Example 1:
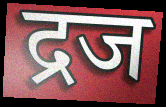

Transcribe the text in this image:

द्रज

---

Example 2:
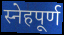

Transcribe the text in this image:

स्नेहपूर्ण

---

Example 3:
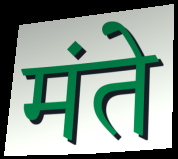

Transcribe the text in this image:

मंते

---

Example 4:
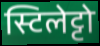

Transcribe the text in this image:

स्टिलेट्टो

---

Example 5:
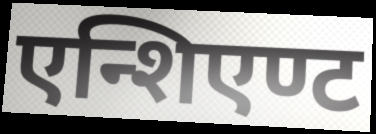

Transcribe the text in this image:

एन्शिएण्ट